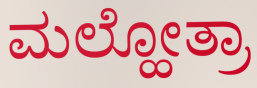
ಮಲ್ಹೋತ್ರಾ